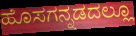
ಹೊಸಗನ್ನಡದಲ್ಲೂ